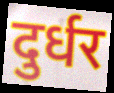
दुर्धर